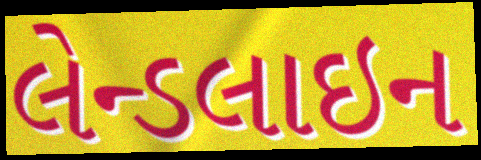
લેન્ડલાઇન